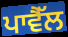
ਪਾਵੈੱਲ